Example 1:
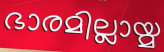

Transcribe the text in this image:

ഭാരമില്ലായ്മ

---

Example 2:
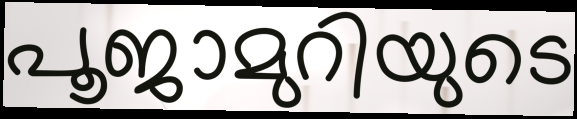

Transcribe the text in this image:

പൂജാമുറിയുടെ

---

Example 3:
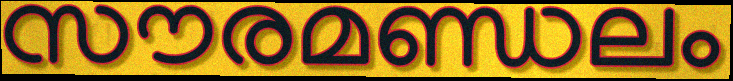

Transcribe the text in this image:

സൗരമണ്ഡലം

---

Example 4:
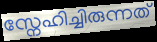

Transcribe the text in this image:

സ്നേഹിച്ചിരുന്നത്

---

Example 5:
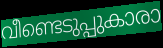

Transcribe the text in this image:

വീണ്ടെടുപ്പുകാരാ